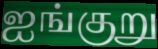
ஐங்குறு